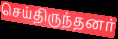
செய்திருந்தனர்